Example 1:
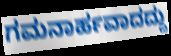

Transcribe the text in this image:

ಗಮನಾರ್ಹವಾದದ್ದು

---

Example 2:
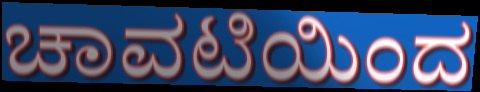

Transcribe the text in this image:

ಚಾವಟಿಯಿಂದ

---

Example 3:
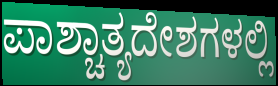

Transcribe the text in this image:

ಪಾಶ್ಚಾತ್ಯದೇಶಗಳಲ್ಲಿ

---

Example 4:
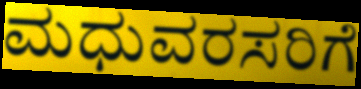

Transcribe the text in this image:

ಮಧುವರಸರಿಗೆ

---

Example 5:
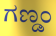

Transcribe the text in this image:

ಗಣ್ಡಂ